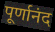
पूर्णानंद